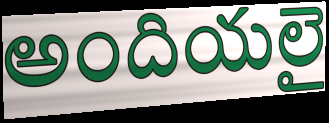
అందియలై